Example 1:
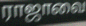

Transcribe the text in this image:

ராஜாவை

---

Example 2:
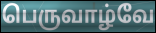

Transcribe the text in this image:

பெருவாழ்வே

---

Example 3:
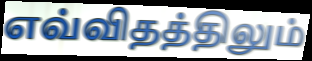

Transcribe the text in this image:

எவ்விதத்திலும்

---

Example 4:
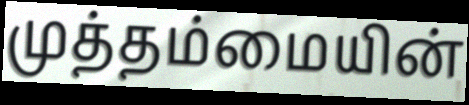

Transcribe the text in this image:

முத்தம்மையின்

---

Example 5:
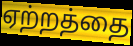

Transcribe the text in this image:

ஏற்றத்தை